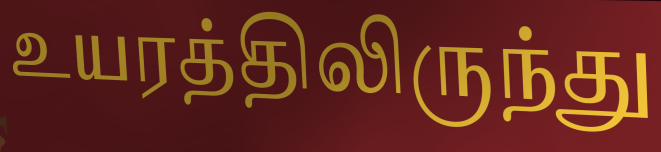
உயரத்திலிருந்து